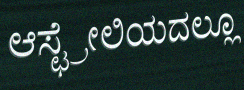
ಆಸ್ಟ್ರೇಲಿಯದಲ್ಲೂ